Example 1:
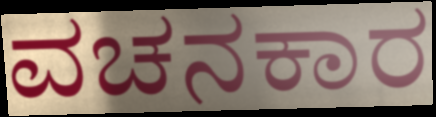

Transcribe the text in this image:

ವಚನಕಾರ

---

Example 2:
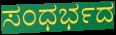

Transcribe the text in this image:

ಸಂಧರ್ಭದ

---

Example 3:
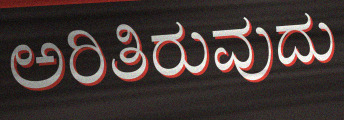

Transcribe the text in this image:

ಅರಿತಿರುವುದು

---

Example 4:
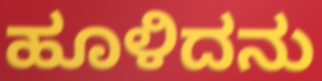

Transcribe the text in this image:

ಹೂಳಿದನು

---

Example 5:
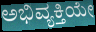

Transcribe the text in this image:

ಅಭಿವ್ಯಕ್ತಿಯೇ